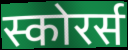
स्कोरर्स